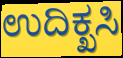
ಉದಿಕ್ಖಸಿ